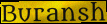
Buransh